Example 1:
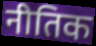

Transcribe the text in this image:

नीतिक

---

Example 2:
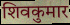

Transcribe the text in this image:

शिवकुमार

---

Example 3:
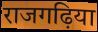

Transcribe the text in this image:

राजगढ़िया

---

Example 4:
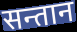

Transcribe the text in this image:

सन्तान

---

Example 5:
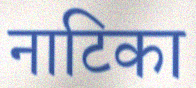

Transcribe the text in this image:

नाटिका